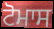
ਟੋਮਾਸ